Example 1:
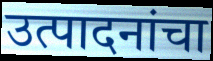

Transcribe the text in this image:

उत्पादनांचा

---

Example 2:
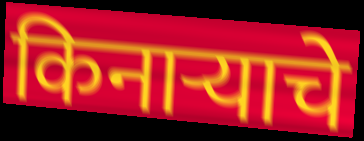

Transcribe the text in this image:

किनाऱ्याचे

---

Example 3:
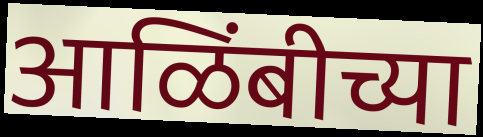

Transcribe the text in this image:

आळिंबीच्या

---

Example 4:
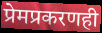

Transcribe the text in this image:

प्रेमप्रकरणही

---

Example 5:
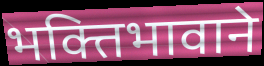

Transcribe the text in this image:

भक्तिभावाने